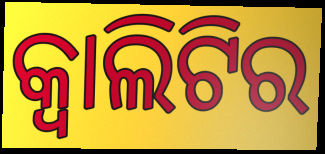
କ୍ୱାଲିଟିର